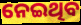
ନେଇଥିବ